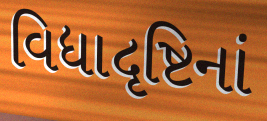
વિદ્યાદૃષ્ટિનાં